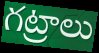
గట్రాలు